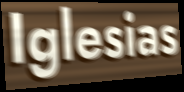
Iglesias